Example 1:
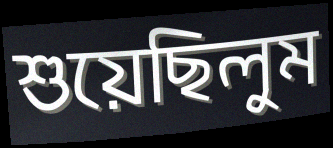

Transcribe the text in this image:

শুয়েছিলুম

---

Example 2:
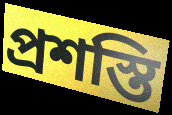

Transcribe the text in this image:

প্রশস্তি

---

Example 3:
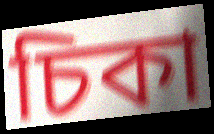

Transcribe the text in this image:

চিকা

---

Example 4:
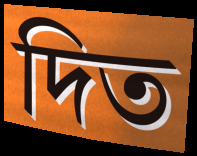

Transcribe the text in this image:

দিত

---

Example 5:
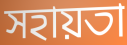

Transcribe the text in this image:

সহায়তা